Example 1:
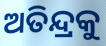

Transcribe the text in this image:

ଅତିନ୍ଦ୍ରକୁ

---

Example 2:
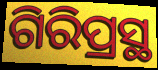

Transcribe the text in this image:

ଗିରିପ୍ରସ୍ଥ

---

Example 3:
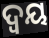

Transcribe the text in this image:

ଦ୍ୱୟ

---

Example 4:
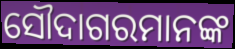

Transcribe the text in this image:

ସୌଦାଗରମାନଙ୍କ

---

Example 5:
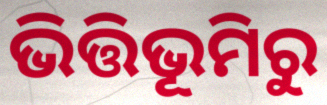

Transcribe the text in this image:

ଭିତ୍ତିଭୂମିରୁ